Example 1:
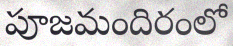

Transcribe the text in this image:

పూజమందిరంలో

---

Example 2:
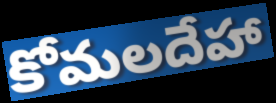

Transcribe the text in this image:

కోమలదేహా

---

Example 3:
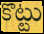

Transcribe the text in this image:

కొట్టు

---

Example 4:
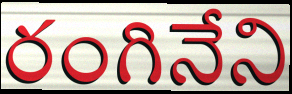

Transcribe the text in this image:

రంగినేని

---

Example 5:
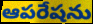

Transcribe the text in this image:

ఆపరేషను